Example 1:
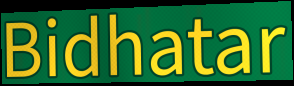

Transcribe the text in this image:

Bidhatar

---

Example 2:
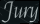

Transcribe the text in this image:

Jury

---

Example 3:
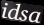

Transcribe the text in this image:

idsa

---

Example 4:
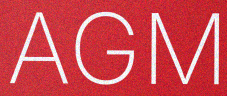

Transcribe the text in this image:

AGM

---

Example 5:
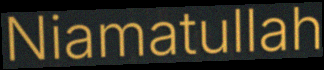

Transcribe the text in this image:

Niamatullah